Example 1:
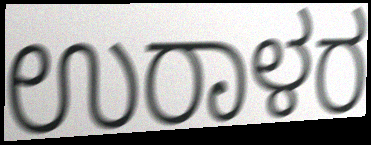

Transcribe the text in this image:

ಉರಾಳರ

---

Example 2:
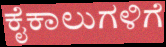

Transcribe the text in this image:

ಕೈಕಾಲುಗಳಿಗೆ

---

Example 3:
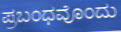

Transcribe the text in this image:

ಪ್ರಬಂಧವೊಂದು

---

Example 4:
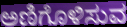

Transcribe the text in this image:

ಅಣಿಗೊಳಿಸುವ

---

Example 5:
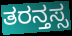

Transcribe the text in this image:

ತರನ್ತಸ್ಸ